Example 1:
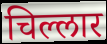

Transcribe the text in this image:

चिल्लार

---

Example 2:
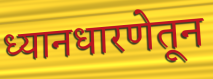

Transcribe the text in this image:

ध्यानधारणेतून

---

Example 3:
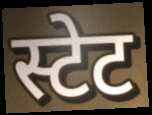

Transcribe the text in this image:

स्टेट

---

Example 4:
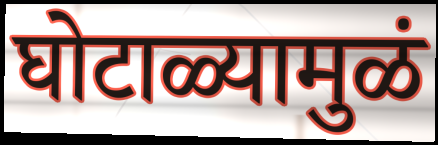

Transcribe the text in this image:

घोटाळ्यामुळं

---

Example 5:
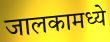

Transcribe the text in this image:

जालकामध्ये